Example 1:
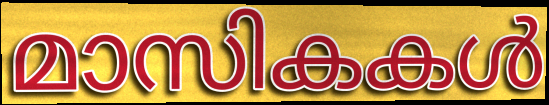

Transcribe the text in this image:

മാസികകൾ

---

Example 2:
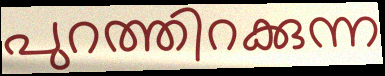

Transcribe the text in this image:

പുറത്തിറക്കുന്ന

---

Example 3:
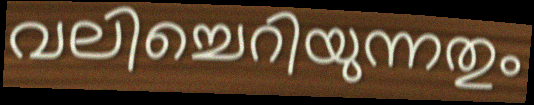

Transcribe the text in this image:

വലിച്ചെറിയുന്നതും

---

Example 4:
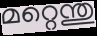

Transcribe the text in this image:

മറ്റെന്തു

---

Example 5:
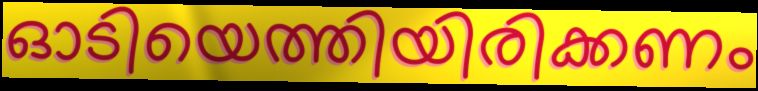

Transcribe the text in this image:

ഓടിയെത്തിയിരിക്കണം